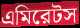
এমিরেটস